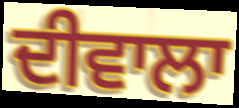
ਦੀਵਾਲਾ